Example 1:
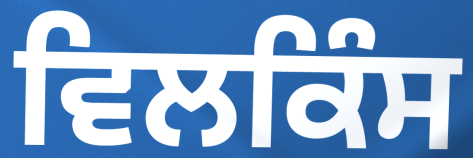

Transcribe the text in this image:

ਵਿਲਕਿੰਸ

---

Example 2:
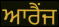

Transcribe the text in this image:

ਆਰੈਂਜ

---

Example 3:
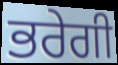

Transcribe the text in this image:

ਭਰੇਗੀ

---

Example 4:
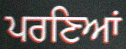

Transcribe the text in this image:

ਪਰਣਿਆਂ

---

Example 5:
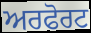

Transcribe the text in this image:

ਅਰਫੋਰਟ